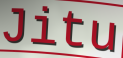
Jitu